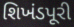
શિખંડપૂરી